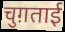
चुग़ताई